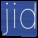
jid